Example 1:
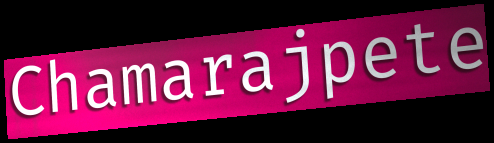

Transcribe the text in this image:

Chamarajpete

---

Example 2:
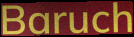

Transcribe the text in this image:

Baruch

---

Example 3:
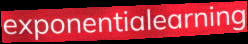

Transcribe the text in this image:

exponentialearning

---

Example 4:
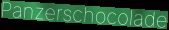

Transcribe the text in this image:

Panzerschocolade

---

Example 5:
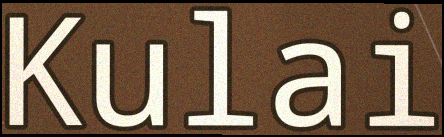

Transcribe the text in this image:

Kulai